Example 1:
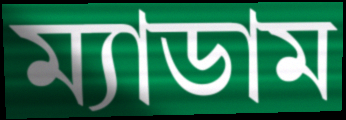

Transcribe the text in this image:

ম্যাডাম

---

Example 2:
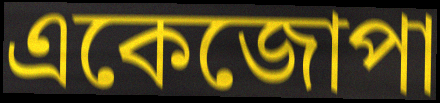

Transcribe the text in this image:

একেজোপা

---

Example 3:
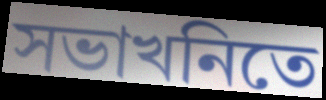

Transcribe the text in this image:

সভাখনিতে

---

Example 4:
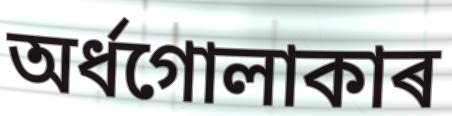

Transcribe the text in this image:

অৰ্ধগোলাকাৰ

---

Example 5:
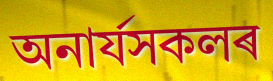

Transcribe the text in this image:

অনাৰ্যসকলৰ